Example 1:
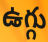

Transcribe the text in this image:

ఉగ్గు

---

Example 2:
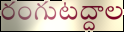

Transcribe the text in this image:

రంగుటద్దాల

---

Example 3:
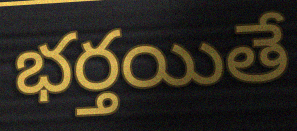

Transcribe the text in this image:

భర్తయితే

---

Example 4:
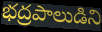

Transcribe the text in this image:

భద్రపాలుడిని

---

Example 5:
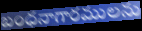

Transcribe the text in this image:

బంధనాగారములను